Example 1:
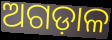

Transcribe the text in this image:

ଅଗଡ଼ାଳ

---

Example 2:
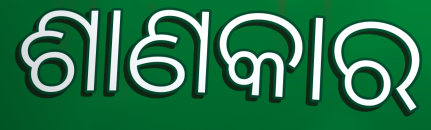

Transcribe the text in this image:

ଶାଣକାର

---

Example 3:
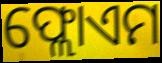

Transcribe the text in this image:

ଫ୍ଲୋଏମ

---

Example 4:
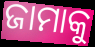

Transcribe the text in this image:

ଜାମାକୁ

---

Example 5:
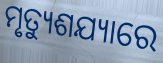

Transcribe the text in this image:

ମୃତ୍ୟୁଶଯ୍ୟାରେ